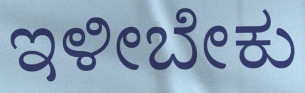
ಇಳೀಬೇಕು